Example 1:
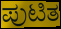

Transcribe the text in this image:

ಪುಟಿತ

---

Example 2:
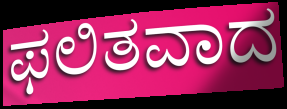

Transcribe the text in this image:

ಫಲಿತವಾದ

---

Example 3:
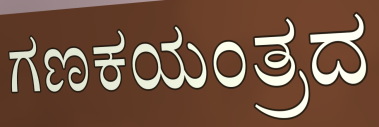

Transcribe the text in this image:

ಗಣಕಯಂತ್ರದ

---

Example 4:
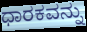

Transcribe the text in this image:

ಧಾರಕವನ್ನು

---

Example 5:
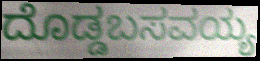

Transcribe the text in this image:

ದೊಡ್ಡಬಸವಯ್ಯ